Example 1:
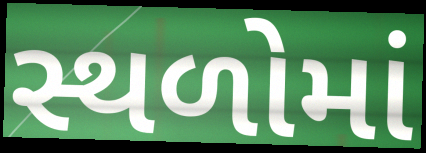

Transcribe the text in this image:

સ્થળોમાં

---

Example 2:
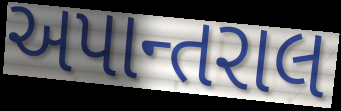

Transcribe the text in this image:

અપાન્તરાલ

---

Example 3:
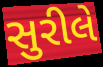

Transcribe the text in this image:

સુરીલે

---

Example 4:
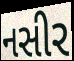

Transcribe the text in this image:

નસીર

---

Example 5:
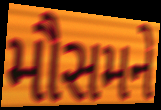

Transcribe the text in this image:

મૌસમને